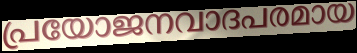
പ്രയോജനവാദപരമായ